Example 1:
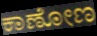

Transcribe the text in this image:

ಕಾಣೋಣ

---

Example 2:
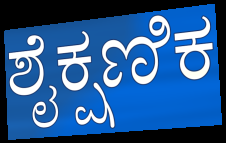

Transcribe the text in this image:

ಶೈಕ್ಷಣಿಕ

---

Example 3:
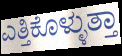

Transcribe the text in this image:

ಎತ್ತಿಕೊಳ್ಳುತ್ತಾ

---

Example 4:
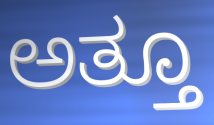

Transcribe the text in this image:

ಅತ್ತೂ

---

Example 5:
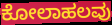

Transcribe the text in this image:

ಕೋಲಾಹಲವು